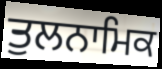
ਤੁਲਨਾਮਿਕ